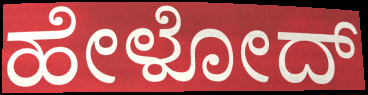
ಹೇಳೋದ್